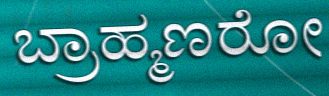
ಬ್ರಾಹ್ಮಣರೋ